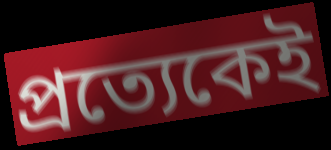
প্ৰত্যেকেই